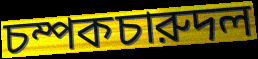
চম্পকচারুদল